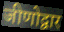
जीणोद्वार